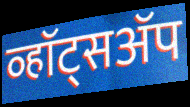
व्हॉट्सॲप